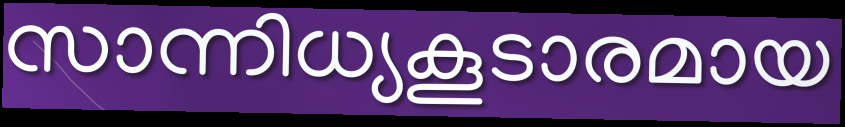
സാന്നിധ്യകൂടാരമായ